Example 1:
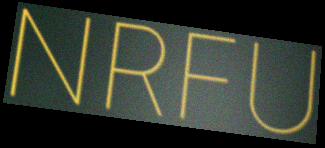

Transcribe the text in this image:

NRFU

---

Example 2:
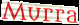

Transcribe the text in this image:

Murra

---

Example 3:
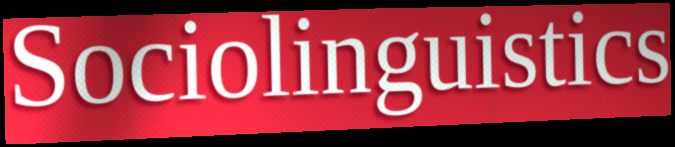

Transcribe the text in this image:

Sociolinguistics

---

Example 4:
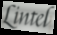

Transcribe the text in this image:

Lintel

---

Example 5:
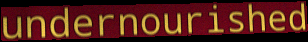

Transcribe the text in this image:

undernourished